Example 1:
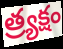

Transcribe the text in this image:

త్ర్యక్షం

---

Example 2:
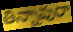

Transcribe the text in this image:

తిన్నావురా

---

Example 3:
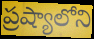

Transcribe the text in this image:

ప్రష్యాలోని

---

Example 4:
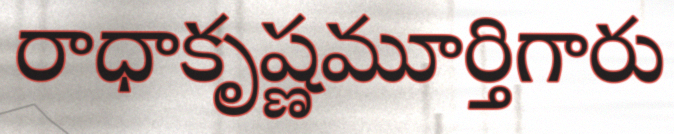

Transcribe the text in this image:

రాధాకృష్ణమూర్తిగారు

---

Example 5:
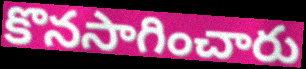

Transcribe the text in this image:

కొనసాగించారు